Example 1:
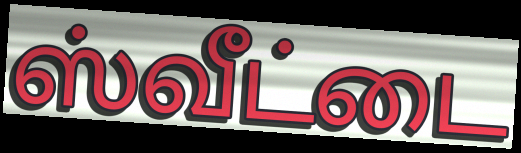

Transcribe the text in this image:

ஸ்வீட்டை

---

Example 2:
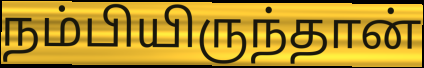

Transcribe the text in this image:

நம்பியிருந்தான்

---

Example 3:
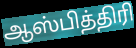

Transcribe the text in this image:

ஆஸ்பித்திரி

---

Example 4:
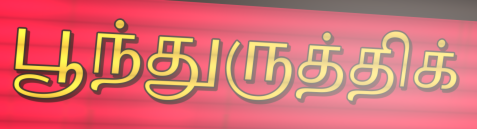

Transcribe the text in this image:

பூந்துருத்திக்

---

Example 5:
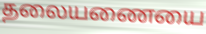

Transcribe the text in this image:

தலையணையை